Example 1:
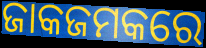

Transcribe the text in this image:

ଜାକଜମକରେ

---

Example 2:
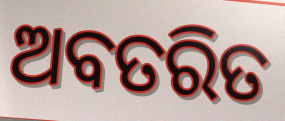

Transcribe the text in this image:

ଅବତରିତ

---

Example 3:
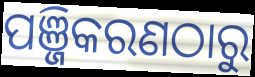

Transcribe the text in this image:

ପଞ୍ଜିକରଣଠାରୁ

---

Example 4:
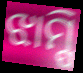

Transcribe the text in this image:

ଝାମ୍ପି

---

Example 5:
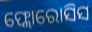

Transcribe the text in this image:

ଫ୍ଲୋରୋସିସ